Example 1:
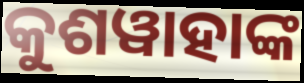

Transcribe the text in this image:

କୁଶୱାହାଙ୍କ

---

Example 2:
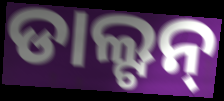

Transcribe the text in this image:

ଡାଲ୍ଟନ୍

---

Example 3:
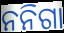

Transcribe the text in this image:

ନନିଗା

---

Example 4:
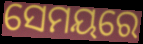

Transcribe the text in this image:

ସେମୟରେ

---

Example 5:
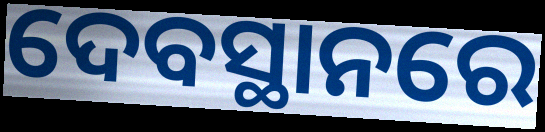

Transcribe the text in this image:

ଦେବସ୍ଥାନରେ